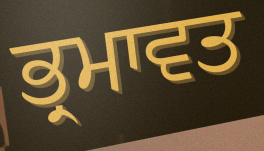
ਭ੍ਰਮਾਵਤ